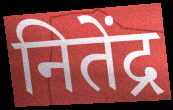
नितेंद्र